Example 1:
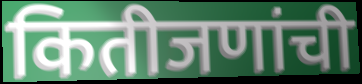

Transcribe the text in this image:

कितीजणांची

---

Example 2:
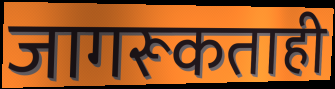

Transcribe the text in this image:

जागरूकताही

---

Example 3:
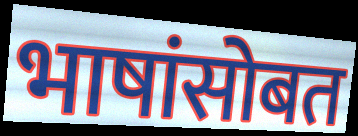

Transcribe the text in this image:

भाषांसोबत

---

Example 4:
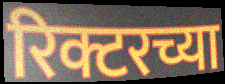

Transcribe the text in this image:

रिक्टरच्या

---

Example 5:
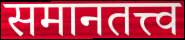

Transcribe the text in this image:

समानतत्त्व